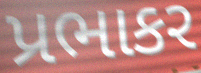
પ્રભાકર